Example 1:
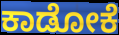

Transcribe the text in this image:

ಕಾಡೋಕೆ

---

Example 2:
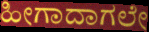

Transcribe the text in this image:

ಹೀಗಾದಾಗಲೇ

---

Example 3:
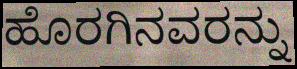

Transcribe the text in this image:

ಹೊರಗಿನವರನ್ನು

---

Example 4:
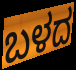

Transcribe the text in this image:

ಬಳದ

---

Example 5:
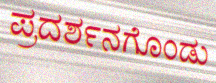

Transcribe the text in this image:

ಪ್ರದರ್ಶನಗೊಂಡು